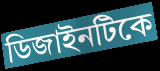
ডিজাইনটিকে